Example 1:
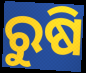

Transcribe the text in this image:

ରୁଷି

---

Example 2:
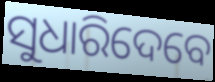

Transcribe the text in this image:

ସୁଧାରିଦେବେ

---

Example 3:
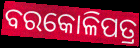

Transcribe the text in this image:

ବରକୋଳିପତ୍ର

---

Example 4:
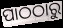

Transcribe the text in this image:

ପାଠଠାରୁ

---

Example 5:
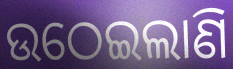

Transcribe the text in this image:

ଉଠେଇଲାଣି